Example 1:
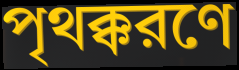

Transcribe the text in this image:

পৃথক্করণে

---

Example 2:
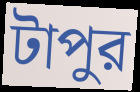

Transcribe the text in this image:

টাপুর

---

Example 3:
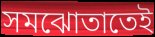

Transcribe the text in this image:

সমঝোতাতেই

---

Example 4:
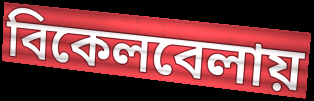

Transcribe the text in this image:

বিকেলবেলায়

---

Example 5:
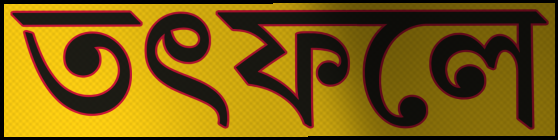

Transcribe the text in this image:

তৎফলে